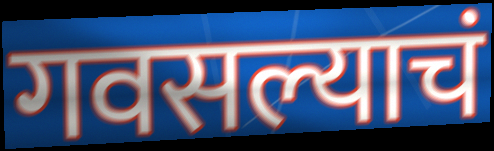
गवसल्याचं